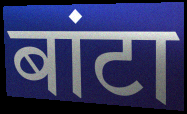
बांटा